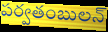
పర్వతంబులన్